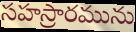
సహస్రారమును